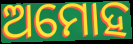
ଅମୋହ